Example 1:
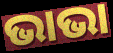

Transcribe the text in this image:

ଭାଭା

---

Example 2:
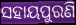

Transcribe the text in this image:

ସହାୟପୁରଣି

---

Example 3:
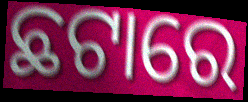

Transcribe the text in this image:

ଛଟାରେ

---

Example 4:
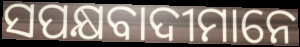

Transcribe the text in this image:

ସପକ୍ଷବାଦୀମାନେ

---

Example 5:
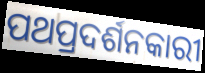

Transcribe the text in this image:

ପଥପ୍ରଦର୍ଶନକାରୀ